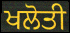
ਖਲੋਤੀ